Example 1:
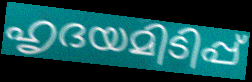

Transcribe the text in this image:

ഹൃദയമിടിപ്പ്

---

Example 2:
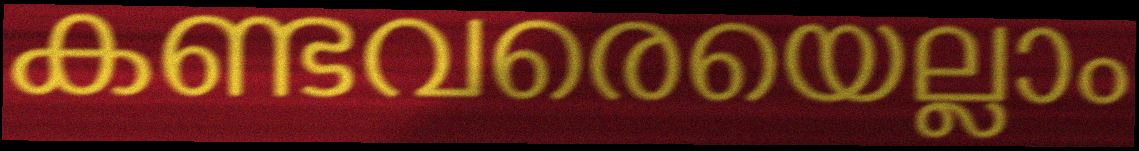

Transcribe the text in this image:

കണ്ടവരെയെല്ലാം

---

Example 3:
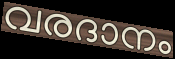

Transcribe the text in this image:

വരദാനം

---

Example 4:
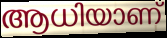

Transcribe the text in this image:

ആധിയാണ്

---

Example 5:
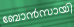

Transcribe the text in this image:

ബോൻസായി